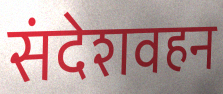
संदेशवहन